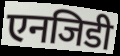
एनजिडी